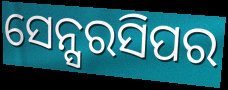
ସେନ୍ସରସିପର